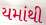
યમાંથી